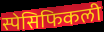
स्पेसिफिकली